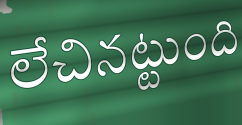
లేచినట్టుంది